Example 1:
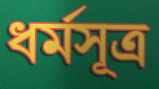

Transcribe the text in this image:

ধর্মসূত্র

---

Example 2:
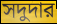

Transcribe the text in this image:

সদুদার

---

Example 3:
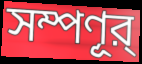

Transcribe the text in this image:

সম্পণূর্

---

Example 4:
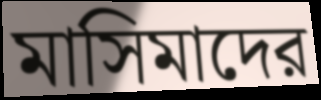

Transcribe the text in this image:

মাসিমাদের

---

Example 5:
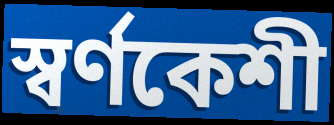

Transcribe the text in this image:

স্বর্ণকেশী